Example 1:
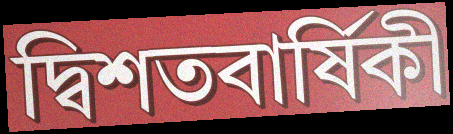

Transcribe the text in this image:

দ্বিশতবার্ষিকী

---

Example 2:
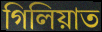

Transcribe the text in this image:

গিলিয়াত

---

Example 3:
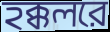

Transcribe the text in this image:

হক্কলরে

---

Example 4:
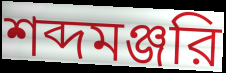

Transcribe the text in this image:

শব্দমঞ্জরি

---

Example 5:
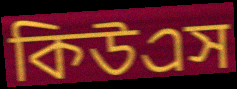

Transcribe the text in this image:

কিউএস